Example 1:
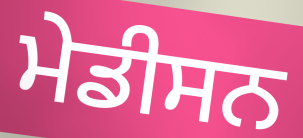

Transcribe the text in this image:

ਮੇਡੀਸਨ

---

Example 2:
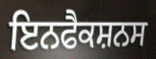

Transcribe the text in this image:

ਇਨਫੈਕਸ਼ਨਸ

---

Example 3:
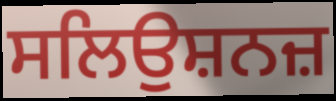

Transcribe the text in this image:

ਸਲਿਉਸ਼ਨਜ਼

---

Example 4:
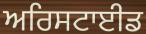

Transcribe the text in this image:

ਅਰਿਸਟਾਈਡ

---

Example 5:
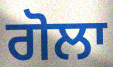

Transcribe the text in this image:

ਗੋਲਾ